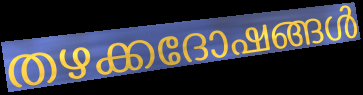
തഴക്കദോഷങ്ങൾ